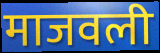
माजवली